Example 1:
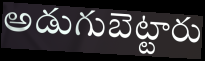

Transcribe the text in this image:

అడుగుబెట్టారు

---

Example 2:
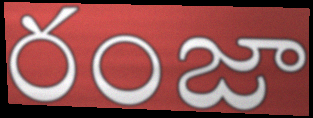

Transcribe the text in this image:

రంజా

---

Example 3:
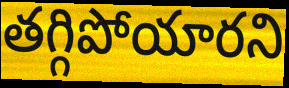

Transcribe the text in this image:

తగ్గిపోయారని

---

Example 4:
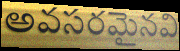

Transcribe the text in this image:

అవసరమైనవి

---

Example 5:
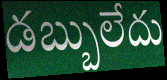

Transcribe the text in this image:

డబ్బులేదు